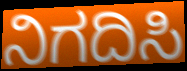
ನಿಗದಿಸಿ